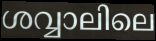
ശവ്വാലിലെ